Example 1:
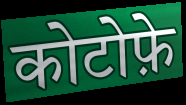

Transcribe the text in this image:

कोटोफ़े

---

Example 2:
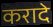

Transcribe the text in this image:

करादे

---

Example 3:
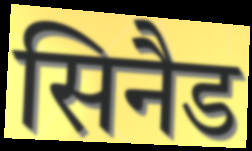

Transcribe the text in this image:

सिनैड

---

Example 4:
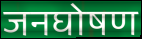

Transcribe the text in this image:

जनघोषण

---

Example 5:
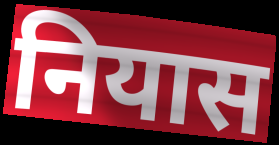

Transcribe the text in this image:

नियास